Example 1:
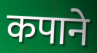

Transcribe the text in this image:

कपाने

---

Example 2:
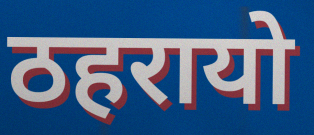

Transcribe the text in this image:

ठहरायो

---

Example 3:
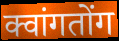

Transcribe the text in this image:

क्वांगतोंग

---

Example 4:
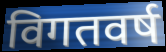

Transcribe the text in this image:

विगतवर्ष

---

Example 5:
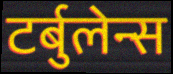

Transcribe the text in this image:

टर्बुलेन्स